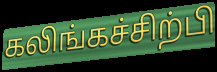
கலிங்கச்சிற்பி